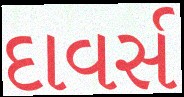
દાવર્સ